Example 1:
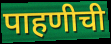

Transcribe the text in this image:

पाहणीची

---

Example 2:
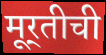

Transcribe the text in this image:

मूर्तीची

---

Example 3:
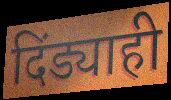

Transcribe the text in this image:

दिंड्याही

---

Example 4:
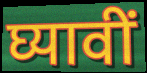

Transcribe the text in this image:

घ्यावीं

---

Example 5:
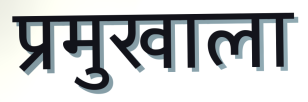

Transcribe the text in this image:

प्रमुखाला